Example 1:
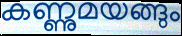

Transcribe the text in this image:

കണ്ണുമയങ്ങും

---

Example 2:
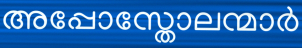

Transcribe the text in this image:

അപ്പോസ്തോലന്മാർ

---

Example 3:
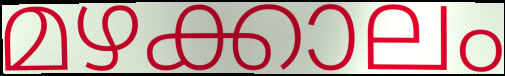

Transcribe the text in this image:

മഴക്കാലം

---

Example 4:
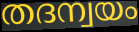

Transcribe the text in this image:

തദന്വയം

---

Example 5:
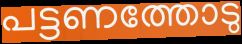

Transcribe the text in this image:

പട്ടണത്തോടു